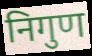
निगुण